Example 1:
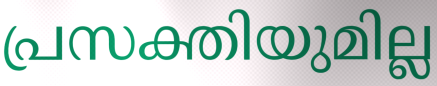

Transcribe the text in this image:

പ്രസക്തിയുമില്ല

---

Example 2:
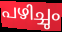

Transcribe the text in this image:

പഴിച്ചും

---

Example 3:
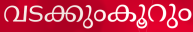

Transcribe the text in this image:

വടക്കുംകൂറും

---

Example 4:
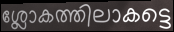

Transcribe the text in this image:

ശ്ലോകത്തിലാകട്ടെ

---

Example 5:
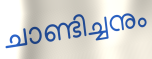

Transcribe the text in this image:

ചാണ്ടിച്ചനും